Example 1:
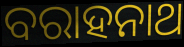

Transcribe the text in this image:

ବରାହନାଥ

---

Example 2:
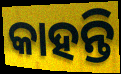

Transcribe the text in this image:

କାହନ୍ତି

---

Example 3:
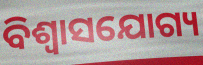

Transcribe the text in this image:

ବିଶ୍ବାସଯୋଗ୍ୟ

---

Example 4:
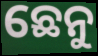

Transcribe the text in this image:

ଛେନୁ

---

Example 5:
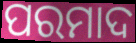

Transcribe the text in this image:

ପରମାଦ